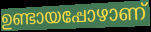
ഉണ്ടായപ്പോഴാണ്